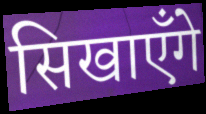
सिखाएँगे